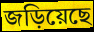
জড়িয়েছে